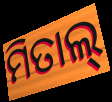
ମିତାଲ୍